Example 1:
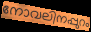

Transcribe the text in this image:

നോവലിനപ്പുറം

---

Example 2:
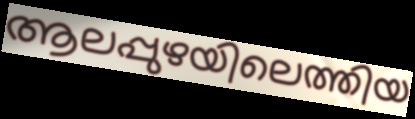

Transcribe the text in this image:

ആലപ്പുഴയിലെത്തിയ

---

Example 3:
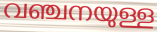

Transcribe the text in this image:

വഞ്ചനയുള്ള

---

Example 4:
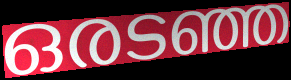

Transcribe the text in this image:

ഒരടഞ്ഞ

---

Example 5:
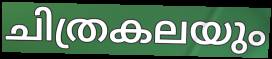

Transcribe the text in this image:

ചിത്രകലയും